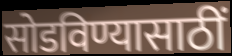
सोडविण्यासाठीं